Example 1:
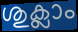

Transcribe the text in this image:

ശുക്ലാം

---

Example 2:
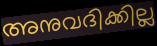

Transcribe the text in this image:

അനുവദിക്കില്ല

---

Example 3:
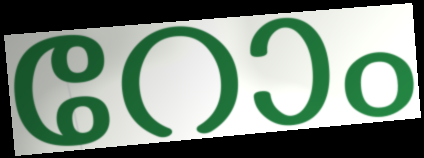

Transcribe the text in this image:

റോം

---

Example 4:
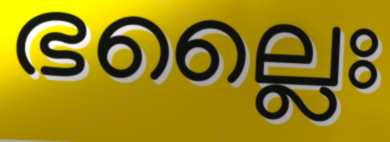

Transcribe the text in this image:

ഭല്ലൈഃ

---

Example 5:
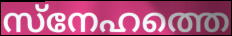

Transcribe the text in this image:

സ്നേഹത്തെ